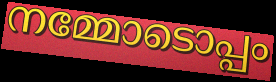
നമ്മോടൊപ്പം